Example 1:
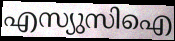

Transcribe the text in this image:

എസ്യുസിഐ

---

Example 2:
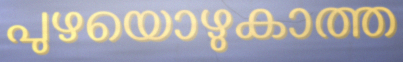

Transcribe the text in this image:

പുഴയൊഴുകാത്ത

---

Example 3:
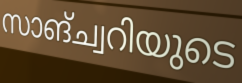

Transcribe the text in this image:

സാങ്ച്വറിയുടെ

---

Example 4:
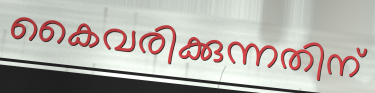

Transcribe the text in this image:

കൈവരിക്കുന്നതിന്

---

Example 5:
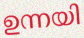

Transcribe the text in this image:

ഉന്നയി